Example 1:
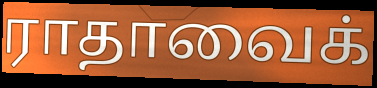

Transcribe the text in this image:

ராதாவைக்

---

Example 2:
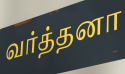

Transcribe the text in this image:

வர்த்தனா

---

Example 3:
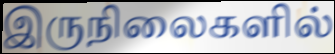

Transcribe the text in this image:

இருநிலைகளில்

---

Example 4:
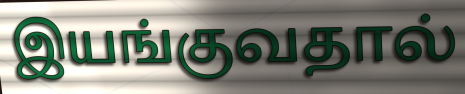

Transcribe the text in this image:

இயங்குவதால்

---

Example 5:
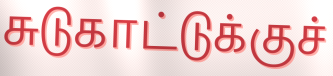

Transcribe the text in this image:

சுடுகாட்டுக்குச்